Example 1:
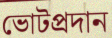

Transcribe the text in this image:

ভোটপ্রদান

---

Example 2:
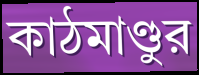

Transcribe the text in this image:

কাঠমাণ্ডুর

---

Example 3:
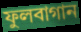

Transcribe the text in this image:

ফুলবাগান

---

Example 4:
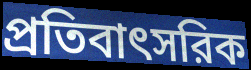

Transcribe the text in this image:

প্রতিবাৎসরিক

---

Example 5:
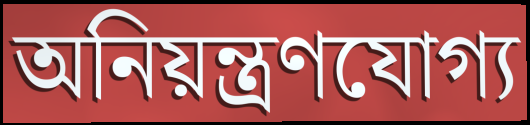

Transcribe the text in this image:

অনিয়ন্ত্রণযোগ্য